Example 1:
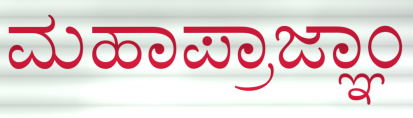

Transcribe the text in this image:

ಮಹಾಪ್ರಾಜ್ಞಾಂ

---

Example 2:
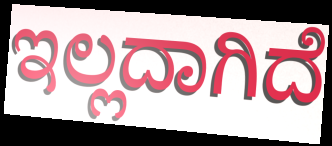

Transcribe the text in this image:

ಇಲ್ಲದಾಗಿದೆ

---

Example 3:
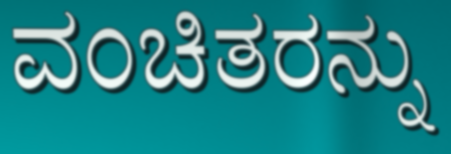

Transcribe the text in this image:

ವಂಚಿತರನ್ನು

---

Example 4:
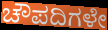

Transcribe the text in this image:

ಚೌಪದಿಗಳೇ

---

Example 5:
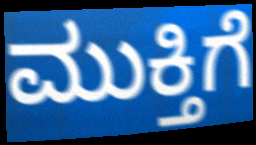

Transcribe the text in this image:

ಮುಕ್ತಿಗೆ